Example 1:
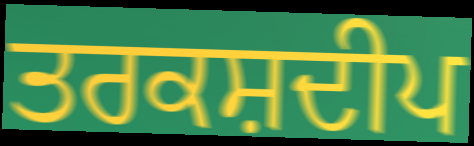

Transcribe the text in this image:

ਤਰਕਸ਼ਦੀਪ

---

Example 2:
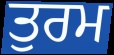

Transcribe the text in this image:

ਤੁਰਮ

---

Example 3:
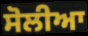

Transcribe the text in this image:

ਸੋਲੀਆ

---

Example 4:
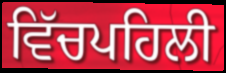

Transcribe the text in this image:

ਵਿੱਚਪਹਿਲੀ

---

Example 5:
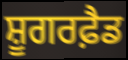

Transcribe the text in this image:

ਸ਼ੂਗਰਫ਼ੈਡ